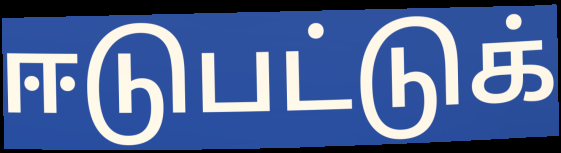
ஈடுபட்டுக்